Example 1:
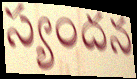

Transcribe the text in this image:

స్యందన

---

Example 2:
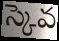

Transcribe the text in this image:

స్కెవ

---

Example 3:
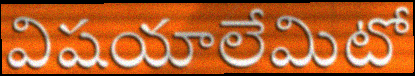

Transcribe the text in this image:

విషయాలేమిటో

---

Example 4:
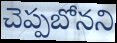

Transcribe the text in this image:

చెప్పబోనని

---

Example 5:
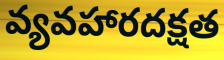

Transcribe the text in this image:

వ్యవహారదక్షత